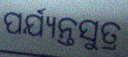
ପର୍ଯ୍ୟନ୍ତସୁତ୍ର